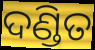
ଦଣ୍ଡିତ